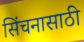
सिंचनासाठी